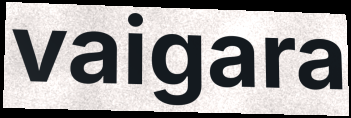
vaigara